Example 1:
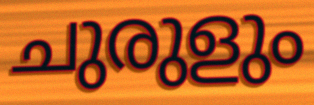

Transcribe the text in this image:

ചുരുളും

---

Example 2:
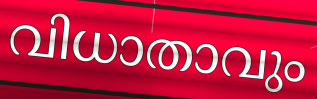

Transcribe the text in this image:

വിധാതാവും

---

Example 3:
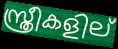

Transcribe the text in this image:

സ്ത്രീകളില്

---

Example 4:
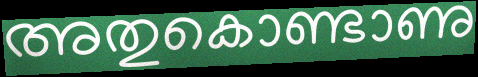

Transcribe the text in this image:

അതുകൊണ്ടാണു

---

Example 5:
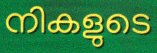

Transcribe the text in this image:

നികളുടെ